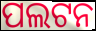
ପଲଟନ